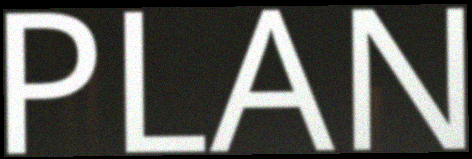
PLAN